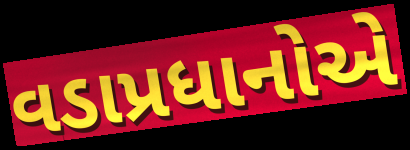
વડાપ્રધાનોએ